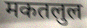
मकतलुल